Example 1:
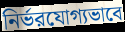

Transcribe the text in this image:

নির্ভরযোগ্যভাবে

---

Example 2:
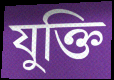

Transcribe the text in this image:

যুক্তি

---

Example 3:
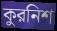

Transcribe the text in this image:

কুরনিশ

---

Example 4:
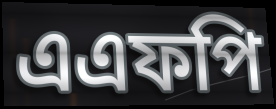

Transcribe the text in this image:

এএফপি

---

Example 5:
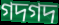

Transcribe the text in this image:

গদগদ